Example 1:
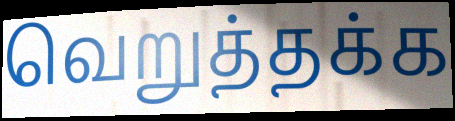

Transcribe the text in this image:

வெறுத்தக்க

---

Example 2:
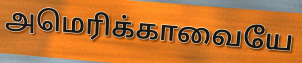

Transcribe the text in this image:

அமெரிக்காவையே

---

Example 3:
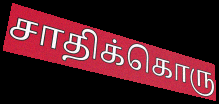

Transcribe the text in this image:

சாதிக்கொரு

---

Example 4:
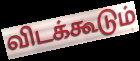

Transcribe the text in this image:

விடக்கூடும்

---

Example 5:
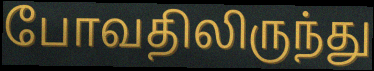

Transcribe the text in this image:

போவதிலிருந்து